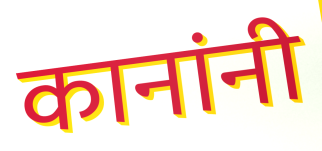
कानांनी